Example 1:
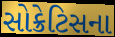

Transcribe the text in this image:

સોક્રેટિસના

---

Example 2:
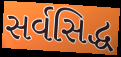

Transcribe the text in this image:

સર્વસિદ્ધ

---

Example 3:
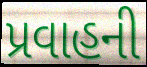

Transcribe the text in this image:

પ્રવાહની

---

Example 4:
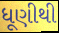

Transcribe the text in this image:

ધૂણીથી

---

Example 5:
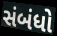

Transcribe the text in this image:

સંબંધો